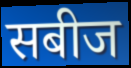
सबीज